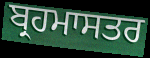
ਬ੍ਰਹਮਾਸਤਰ